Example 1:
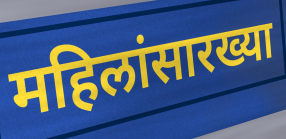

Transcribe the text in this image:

महिलांसारख्या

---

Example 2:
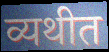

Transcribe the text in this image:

व्यथीत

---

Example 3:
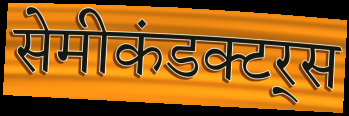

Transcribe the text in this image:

सेमीकंडक्टर्स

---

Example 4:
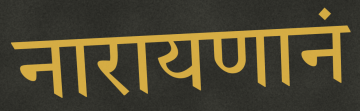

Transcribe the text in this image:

नारायणानं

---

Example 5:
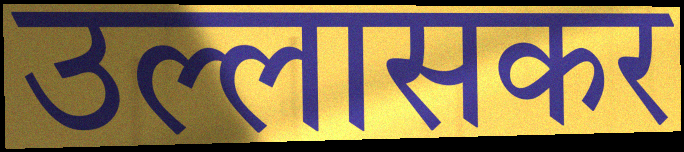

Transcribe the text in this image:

उल्लासकर